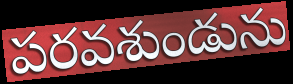
పరవశుండును